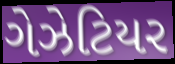
ગેઝેટિયર